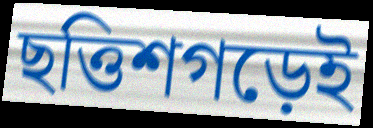
ছত্তিশগড়েই